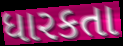
ધારકતા